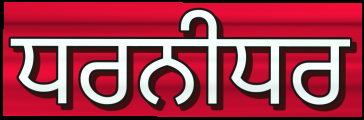
ਧਰਨੀਧਰ